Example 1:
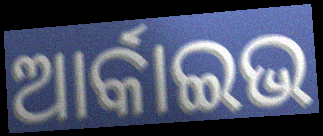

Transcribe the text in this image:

ଆର୍କାଇଭ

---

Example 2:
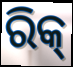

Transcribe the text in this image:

ରିକ୍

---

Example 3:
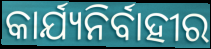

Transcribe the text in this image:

କାର୍ଯ୍ୟନିର୍ବାହୀର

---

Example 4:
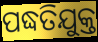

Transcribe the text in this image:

ପଦ୍ଧତିଯୁକ୍ତ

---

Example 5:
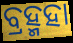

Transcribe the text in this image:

ବ୍ରହ୍ମହା